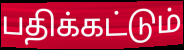
பதிக்கட்டும்